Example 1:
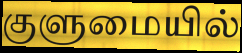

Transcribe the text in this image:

குளுமையில்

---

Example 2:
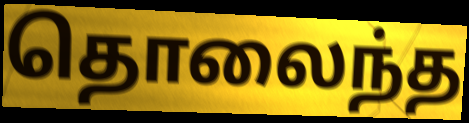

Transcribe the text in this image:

தொலைந்த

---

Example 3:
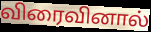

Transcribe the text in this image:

விரைவினால்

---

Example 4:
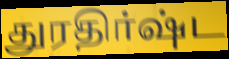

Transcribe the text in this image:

துரதிர்ஷ்ட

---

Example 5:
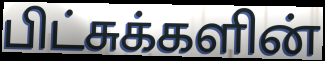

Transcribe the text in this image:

பிட்சுக்களின்